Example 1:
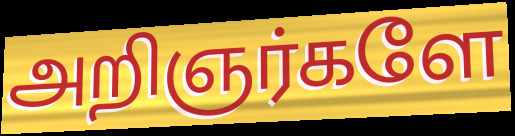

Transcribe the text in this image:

அறிஞர்களே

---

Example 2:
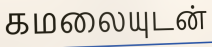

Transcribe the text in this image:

கமலையுடன்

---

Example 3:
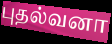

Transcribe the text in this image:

புதல்வனா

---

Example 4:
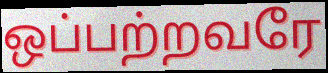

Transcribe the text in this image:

ஒப்பற்றவரே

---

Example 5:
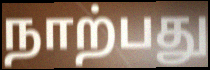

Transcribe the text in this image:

நாற்பது